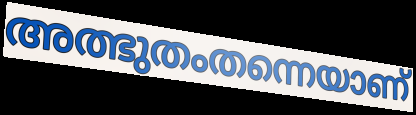
അത്ഭുതംതന്നെയാണ്